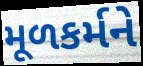
મૂળકર્મને